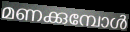
മണക്കുമ്പോൾ